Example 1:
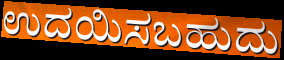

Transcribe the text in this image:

ಉದಯಿಸಬಹುದು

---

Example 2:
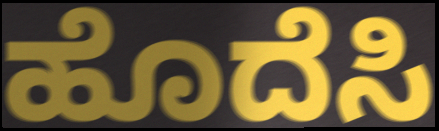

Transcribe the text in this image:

ಹೊದೆಸಿ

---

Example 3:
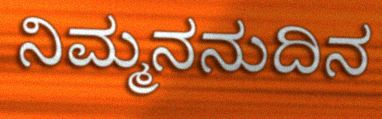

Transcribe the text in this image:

ನಿಮ್ಮನನುದಿನ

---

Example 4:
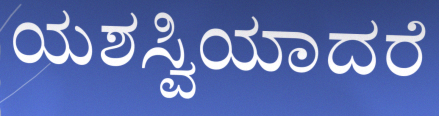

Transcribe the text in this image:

ಯಶಸ್ವಿಯಾದರೆ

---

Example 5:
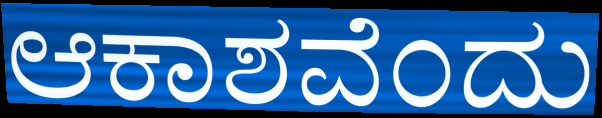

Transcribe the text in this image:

ಆಕಾಶವೆಂದು